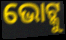
ଭୋଟ୍କୁ